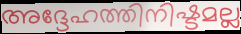
അദ്ദേഹത്തിനിഷ്ടമല്ല